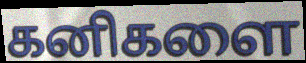
கனிகளை